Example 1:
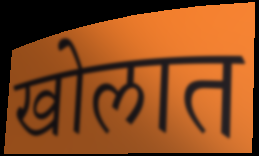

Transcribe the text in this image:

खोलात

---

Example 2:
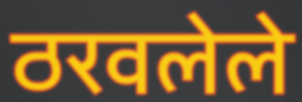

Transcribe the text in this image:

ठरवलेले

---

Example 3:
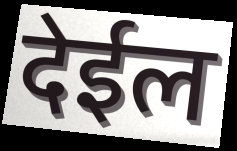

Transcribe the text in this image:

देईल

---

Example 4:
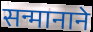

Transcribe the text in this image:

सन्मानाने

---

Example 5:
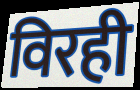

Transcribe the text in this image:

विरही